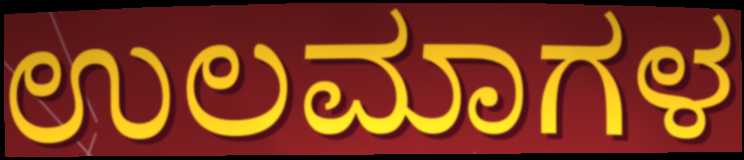
ಉಲಮಾಗಳ